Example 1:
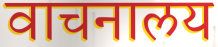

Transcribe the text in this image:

वाचनालय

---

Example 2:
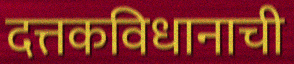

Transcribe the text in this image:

दत्तकविधानाची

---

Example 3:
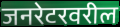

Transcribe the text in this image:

जनरेटरवरील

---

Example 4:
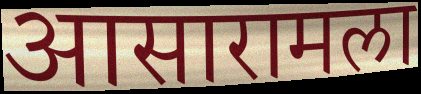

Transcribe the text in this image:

आसारामला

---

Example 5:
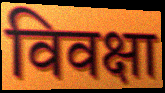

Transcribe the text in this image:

विवक्षा